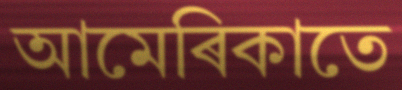
আমেৰিকাতে